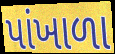
પાંખાળા